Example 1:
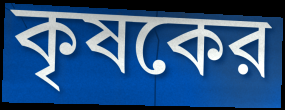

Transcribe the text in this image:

কৃষকের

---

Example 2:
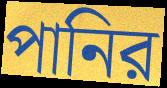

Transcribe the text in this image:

পানির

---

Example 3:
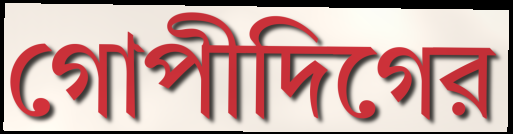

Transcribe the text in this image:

গোপীদিগের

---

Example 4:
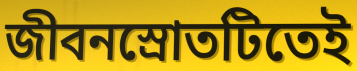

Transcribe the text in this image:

জীবনস্রোতটিতেই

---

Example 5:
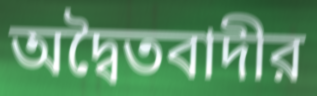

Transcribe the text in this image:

অদ্বৈতবাদীর